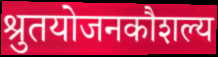
श्रुतयोजनकौशल्य